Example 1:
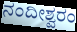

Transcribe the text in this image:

ನಂದೀಶ್ವರಂ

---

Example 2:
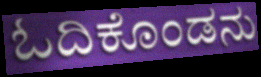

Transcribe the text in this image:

ಓದಿಕೊಂಡನು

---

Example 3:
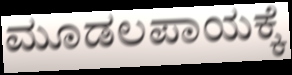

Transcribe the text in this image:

ಮೂಡಲಪಾಯಕ್ಕೆ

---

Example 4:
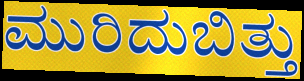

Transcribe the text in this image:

ಮುರಿದುಬಿತ್ತು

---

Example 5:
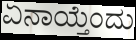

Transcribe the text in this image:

ಏನಾಯ್ತೆಂದು